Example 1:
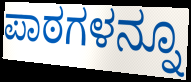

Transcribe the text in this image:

ಪಾಠಗಳನ್ನೂ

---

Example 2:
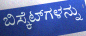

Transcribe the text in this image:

ಬಿಸ್ಕೆಟ್‌ಗಳನ್ನು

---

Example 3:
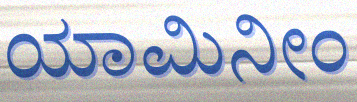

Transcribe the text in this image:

ಯಾಮಿನೀಂ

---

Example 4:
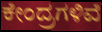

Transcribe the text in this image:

ಕೇಂದ್ರಗಳಿವೆ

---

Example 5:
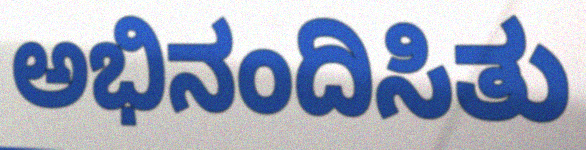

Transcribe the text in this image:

ಅಭಿನಂದಿಸಿತು